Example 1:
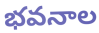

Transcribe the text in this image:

భవనాల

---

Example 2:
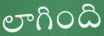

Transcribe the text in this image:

లాగింది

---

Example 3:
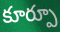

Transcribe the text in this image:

కూర్పూ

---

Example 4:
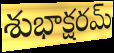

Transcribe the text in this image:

శుభాక్షరమ్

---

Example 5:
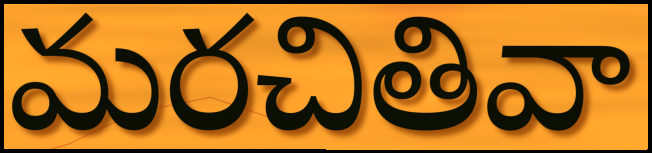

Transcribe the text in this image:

మరచితివా